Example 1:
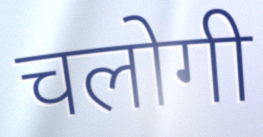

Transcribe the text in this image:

चलोगी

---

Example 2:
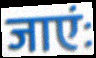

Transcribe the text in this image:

जाएंः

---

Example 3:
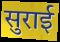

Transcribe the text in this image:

सुराई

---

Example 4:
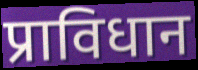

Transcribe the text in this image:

प्राविधान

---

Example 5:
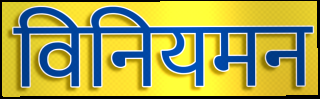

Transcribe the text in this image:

विनियमन